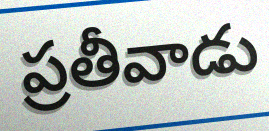
ప్రతీవాడు